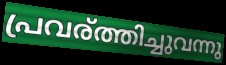
പ്രവര്ത്തിച്ചുവന്നു